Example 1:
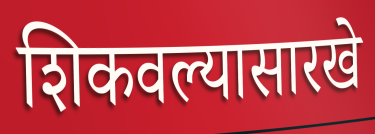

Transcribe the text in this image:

शिकवल्यासारखे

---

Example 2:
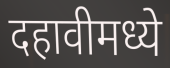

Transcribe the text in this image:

दहावीमध्ये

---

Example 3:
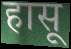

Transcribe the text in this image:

हासू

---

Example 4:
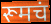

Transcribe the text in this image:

रूमचं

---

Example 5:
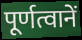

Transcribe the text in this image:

पूर्णत्वानें